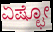
ಏಷ್ಟೋ